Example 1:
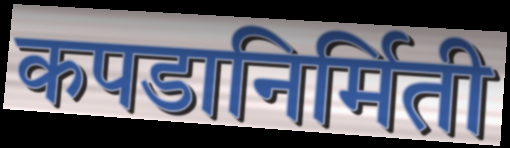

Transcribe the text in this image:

कपडानिर्मिती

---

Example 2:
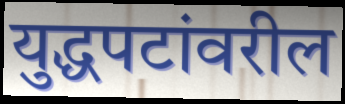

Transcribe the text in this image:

युद्धपटांवरील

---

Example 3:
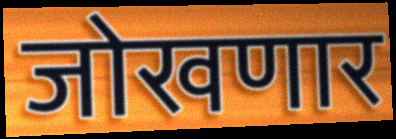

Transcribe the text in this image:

जोखणार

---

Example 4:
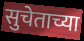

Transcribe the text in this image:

सुचेताच्या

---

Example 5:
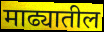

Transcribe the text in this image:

माढ्यातील